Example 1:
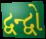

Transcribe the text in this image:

દ્વન્દ્વો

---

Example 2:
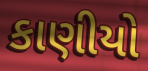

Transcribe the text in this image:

કાણીયો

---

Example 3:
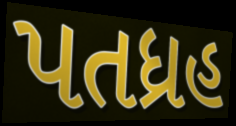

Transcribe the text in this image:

પતધ્રહ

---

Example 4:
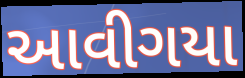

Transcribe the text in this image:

આવીગયા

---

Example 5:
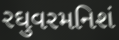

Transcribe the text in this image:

રઘુવરમનિશં